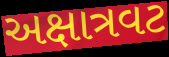
અક્ષાત્રવટ